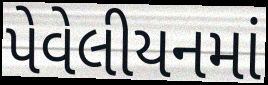
પેવેલીયનમાં